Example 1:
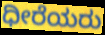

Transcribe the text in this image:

ಧೀರೆಯರು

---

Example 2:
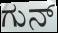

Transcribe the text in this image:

ಗುನ್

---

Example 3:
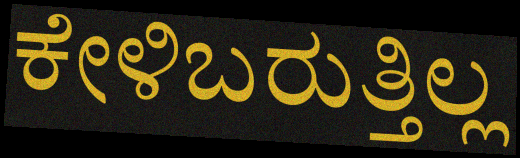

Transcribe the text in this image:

ಕೇಳಿಬರುತ್ತಿಲ್ಲ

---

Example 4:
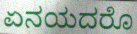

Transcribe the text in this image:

ಏನಯದರೊ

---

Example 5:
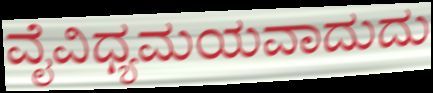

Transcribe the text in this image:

ವೈವಿಧ್ಯಮಯವಾದುದು